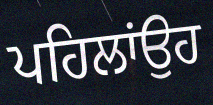
ਪਹਿਲਾਂਉਹ